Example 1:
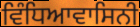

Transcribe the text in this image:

ਵਿੰਧਿਆਵਾਸਿਨੀ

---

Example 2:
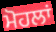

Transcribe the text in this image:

ਮੋਹਲਾਂ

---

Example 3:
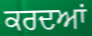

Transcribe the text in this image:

ਕਰਦਆਂ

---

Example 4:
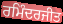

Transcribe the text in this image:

ਰਮਿੰਦਰਜੀਤ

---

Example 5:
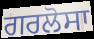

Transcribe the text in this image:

ਗਰਲੋਸਾ